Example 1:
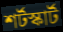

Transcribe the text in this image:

শর্টস্কার্ট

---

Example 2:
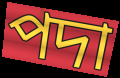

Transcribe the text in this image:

পদা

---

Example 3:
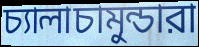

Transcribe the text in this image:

চ্যালাচামুন্ডারা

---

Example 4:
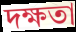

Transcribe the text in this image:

দক্ষতা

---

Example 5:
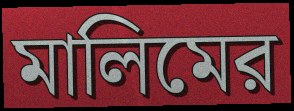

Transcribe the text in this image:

মালিমের